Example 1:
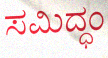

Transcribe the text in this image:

ಸಮಿದ್ಧಂ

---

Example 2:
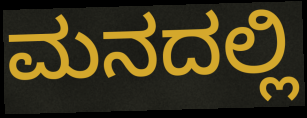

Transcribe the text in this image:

ಮನದಲ್ಲಿ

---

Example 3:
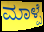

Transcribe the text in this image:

ಮಾಳ್ಪೆ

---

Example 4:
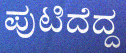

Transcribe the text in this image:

ಪುಟಿದೆದ್ದ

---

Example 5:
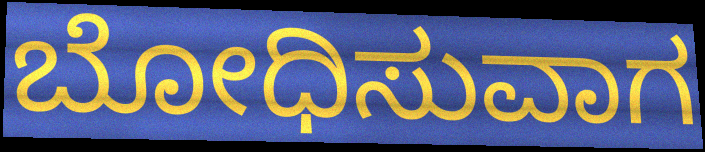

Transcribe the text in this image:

ಬೋಧಿಸುವಾಗ